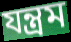
যন্ত্রম